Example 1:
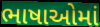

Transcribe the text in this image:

ભાષાઓમાં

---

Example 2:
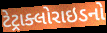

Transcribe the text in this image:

ટેટ્રાક્લોરાઇડનો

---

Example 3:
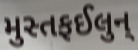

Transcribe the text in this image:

મુસ્તફઈલુન્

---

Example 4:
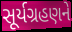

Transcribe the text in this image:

સૂર્યગ્રહણને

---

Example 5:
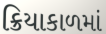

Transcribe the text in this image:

ક્રિયાકાળમાં